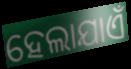
ହେଲାଯାଏଁ